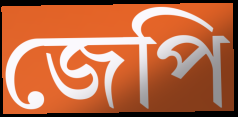
জেপি